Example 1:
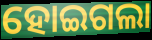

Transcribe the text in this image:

ହୋଇଗଲା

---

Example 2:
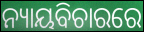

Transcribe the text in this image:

ନ୍ୟାୟବିଚାରରେ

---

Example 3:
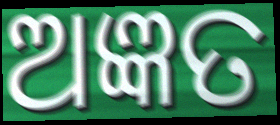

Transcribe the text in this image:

ଅଜ୍ଞତ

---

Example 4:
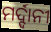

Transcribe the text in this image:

ମର୍ଦ୍ଦାନୀ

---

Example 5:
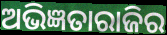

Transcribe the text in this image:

ଅଭିଜ୍ଞତାରାଜିର